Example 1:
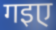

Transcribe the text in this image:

गइए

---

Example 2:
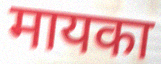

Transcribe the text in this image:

मायका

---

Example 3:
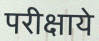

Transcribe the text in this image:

परीक्षाये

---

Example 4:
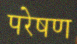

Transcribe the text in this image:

परेषण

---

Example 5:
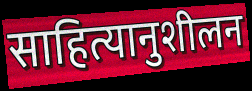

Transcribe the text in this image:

साहित्यानुशीलन